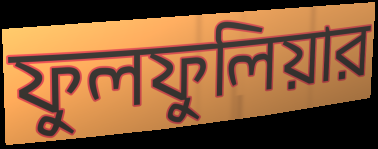
ফুলফুলিয়ার